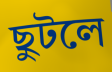
ছুটলে